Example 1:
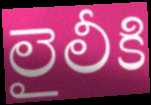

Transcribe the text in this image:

లైలీకి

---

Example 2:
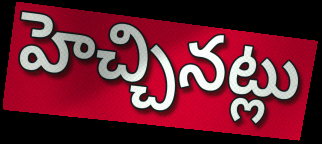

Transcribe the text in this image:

హెచ్చినట్లు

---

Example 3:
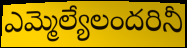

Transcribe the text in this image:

ఎమ్మెల్యేలందరినీ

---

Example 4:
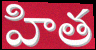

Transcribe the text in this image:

హిత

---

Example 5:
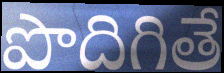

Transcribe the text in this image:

పొదిగితే